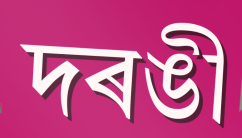
দৰঙী